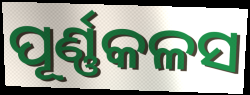
ପୂର୍ଣ୍ଣକଳସ